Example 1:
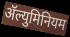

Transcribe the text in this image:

ॲल्युमिनियम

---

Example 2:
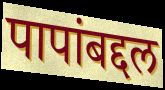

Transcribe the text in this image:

पापांबद्दल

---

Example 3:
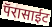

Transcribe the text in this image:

पॅरासाईट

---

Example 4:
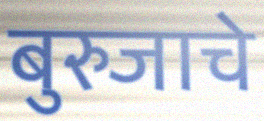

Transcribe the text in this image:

बुरुजाचे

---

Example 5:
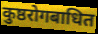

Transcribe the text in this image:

कुष्ठरोगबाधित